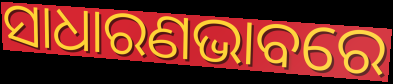
ସାଧାରଣଭାବରେ